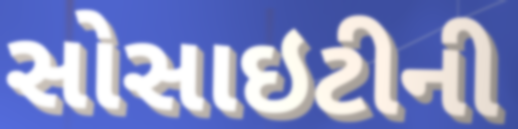
સોસાઇટીની